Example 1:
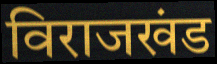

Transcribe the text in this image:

विराजखंड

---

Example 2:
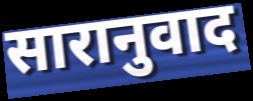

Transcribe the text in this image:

सारानुवाद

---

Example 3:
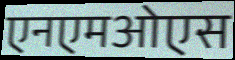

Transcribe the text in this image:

एनएमओएस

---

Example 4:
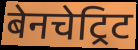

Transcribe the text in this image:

बेनचेट्रिट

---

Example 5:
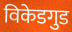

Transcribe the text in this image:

विकेडगुड